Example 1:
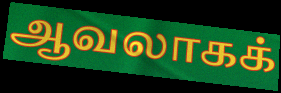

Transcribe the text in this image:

ஆவலாகக்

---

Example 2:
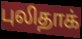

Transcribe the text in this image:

புலிதாக்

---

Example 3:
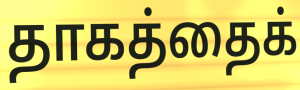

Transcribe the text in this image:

தாகத்தைக்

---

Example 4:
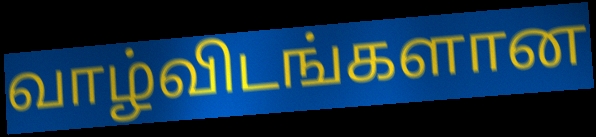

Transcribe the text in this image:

வாழ்விடங்களான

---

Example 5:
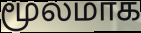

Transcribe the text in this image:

மூலமாக